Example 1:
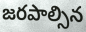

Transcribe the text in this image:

జరపాల్సిన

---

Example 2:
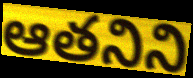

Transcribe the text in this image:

ఆతనిని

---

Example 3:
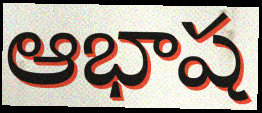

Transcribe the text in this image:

ఆభాష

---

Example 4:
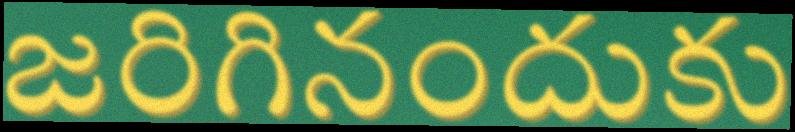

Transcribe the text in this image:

జరిగినందుకు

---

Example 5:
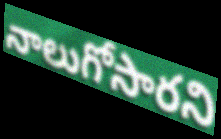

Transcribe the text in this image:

నాలుగోసారని